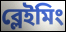
ব্লেইমিং